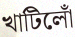
খাটিলোঁ